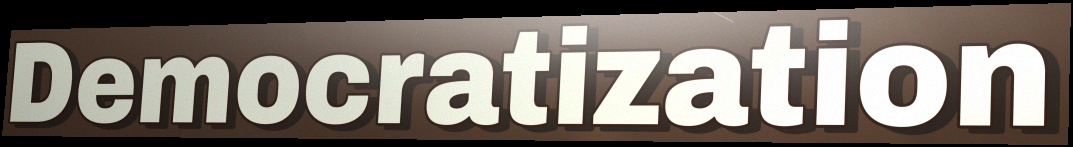
Democratization